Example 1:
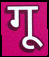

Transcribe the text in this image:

गू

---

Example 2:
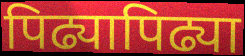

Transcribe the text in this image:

पिढ्यापिढ्या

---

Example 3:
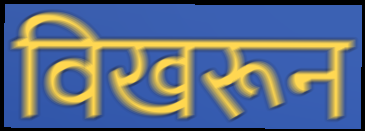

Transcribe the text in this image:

विखरून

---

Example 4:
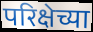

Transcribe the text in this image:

परिक्षेच्या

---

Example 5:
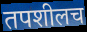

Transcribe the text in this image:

तपशीलच